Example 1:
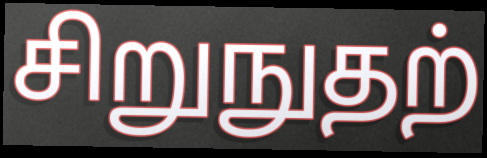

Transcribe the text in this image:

சிறுநுதற்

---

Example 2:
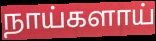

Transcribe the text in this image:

நாய்களாய்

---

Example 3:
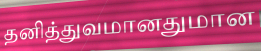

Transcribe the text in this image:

தனித்துவமானதுமான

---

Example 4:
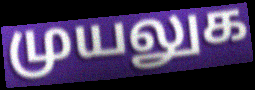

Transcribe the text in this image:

முயலுக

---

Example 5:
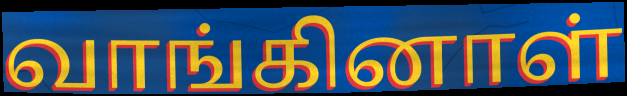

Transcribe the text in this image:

வாங்கினாள்